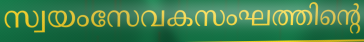
സ്വയംസേവകസംഘത്തിന്റെ